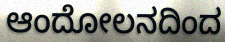
ಆಂದೋಲನದಿಂದ